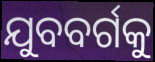
ଯୁବବର୍ଗକୁ